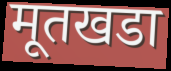
मूतखडा